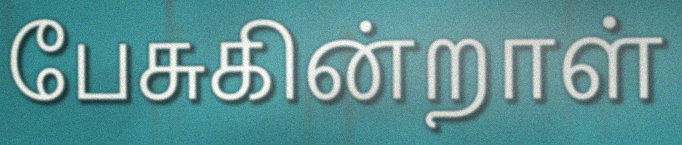
பேசுகின்றாள்